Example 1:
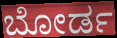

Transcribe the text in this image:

ಬೋರ್ಡ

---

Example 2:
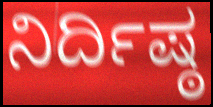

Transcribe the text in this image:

ನಿರ್ದಿಷ್ಠ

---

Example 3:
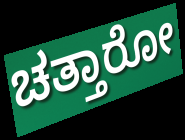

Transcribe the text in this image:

ಚತ್ತಾರೋ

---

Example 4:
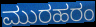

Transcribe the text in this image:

ಮುರಹರಂ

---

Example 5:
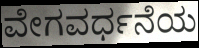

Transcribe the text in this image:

ವೇಗವರ್ಧನೆಯ